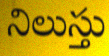
నిలుస్తు